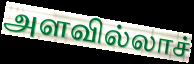
அளவில்லாச்